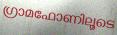
ഗ്രാമഫോണിലൂടെ